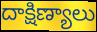
దాక్షిణ్యాలు